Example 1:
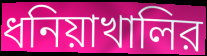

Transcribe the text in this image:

ধনিয়াখালির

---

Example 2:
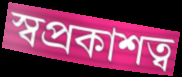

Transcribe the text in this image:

স্বপ্রকাশত্ব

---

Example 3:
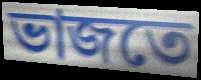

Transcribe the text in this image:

ভাজতে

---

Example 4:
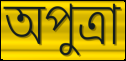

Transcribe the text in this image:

অপুত্রা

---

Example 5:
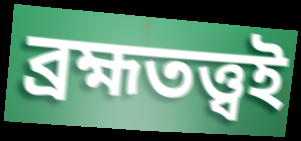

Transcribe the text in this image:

ব্রহ্মতত্ত্বই